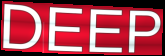
DEEP